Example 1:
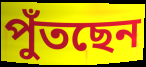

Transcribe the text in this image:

পুঁতছেন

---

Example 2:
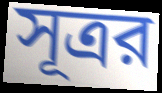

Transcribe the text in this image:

সূত্রর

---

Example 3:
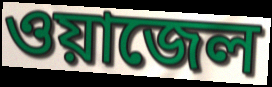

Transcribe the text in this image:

ওয়াজেল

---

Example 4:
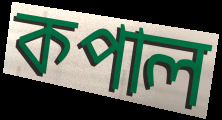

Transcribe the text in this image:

কপাল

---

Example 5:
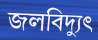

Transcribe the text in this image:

জলবিদ্যুৎ